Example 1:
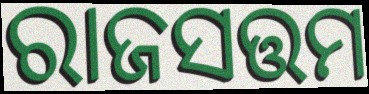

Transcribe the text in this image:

ରାଜସତ୍ତମ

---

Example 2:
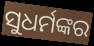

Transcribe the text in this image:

ସୁଧର୍ମଙ୍କର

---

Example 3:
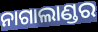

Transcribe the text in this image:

ନାଗାଲାଣ୍ଡର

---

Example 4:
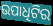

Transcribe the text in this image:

ଉପାଧିଟିର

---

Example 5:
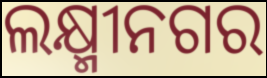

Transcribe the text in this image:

ଲକ୍ଷ୍ମୀନଗର